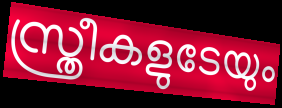
സ്ത്രീകളുടേയും